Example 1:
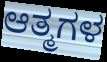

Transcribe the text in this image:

ಆತ್ಮಗಳ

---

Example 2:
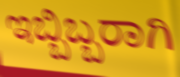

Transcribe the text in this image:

ಇಬ್ಬಿಬ್ಬರಾಗಿ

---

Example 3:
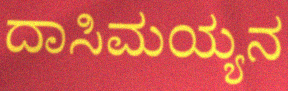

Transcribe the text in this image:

ದಾಸಿಮಯ್ಯನ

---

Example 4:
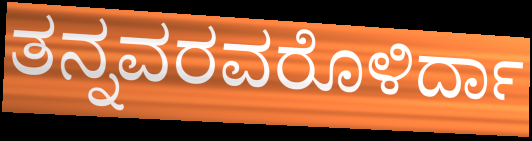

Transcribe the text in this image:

ತನ್ನವರವರೊಳಿರ್ದಾ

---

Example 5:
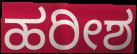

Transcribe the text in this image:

ಹರೀಶ